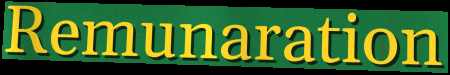
Remunaration